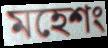
মহেশং